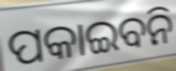
ପକାଇବନି